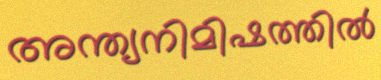
അന്ത്യനിമിഷത്തിൽ